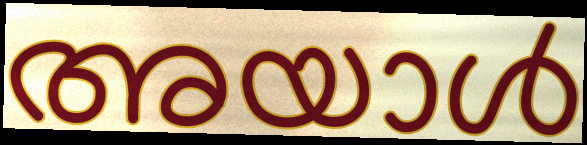
അയാൾ